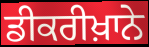
ਡੀਕਰੀਖ਼ਾਨੇ